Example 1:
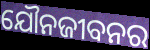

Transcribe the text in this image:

ଯୌନଜୀବନର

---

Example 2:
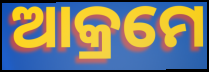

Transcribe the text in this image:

ଆକ୍ରମେ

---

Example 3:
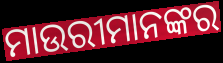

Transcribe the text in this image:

ମାଉରୀମାନଙ୍କର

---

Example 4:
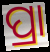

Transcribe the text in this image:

ପ୍ରା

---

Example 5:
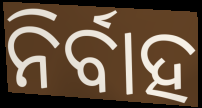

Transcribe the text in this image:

ନିର୍ବାହ